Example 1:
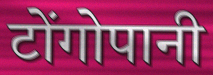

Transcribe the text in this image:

टोंगोपानी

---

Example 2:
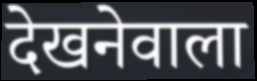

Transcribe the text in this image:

देखनेवाला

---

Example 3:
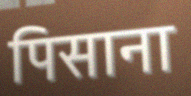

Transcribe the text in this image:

पिसाना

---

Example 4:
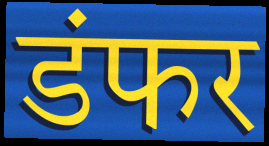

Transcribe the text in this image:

डंफर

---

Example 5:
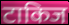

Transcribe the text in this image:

टाकिज